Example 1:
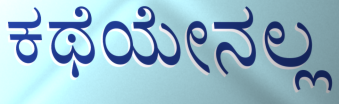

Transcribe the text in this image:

ಕಥೆಯೇನಲ್ಲ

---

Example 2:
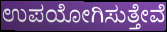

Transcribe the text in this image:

ಉಪಯೋಗಿಸುತ್ತೇವೆ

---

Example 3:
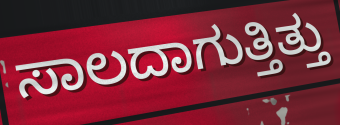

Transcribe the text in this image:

ಸಾಲದಾಗುತ್ತಿತ್ತು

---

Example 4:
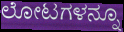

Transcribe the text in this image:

ಲೋಟಗಳನ್ನೂ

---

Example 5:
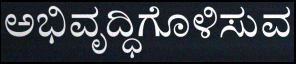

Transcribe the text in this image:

ಅಭಿವೃದ್ಧಿಗೊಳಿಸುವ